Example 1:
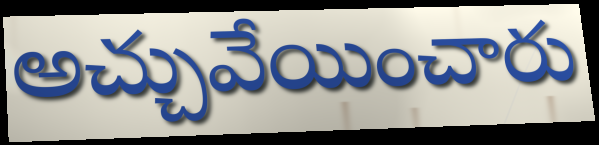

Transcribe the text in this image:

అచ్చువేయించారు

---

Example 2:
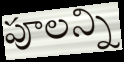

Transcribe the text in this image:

పూలన్ని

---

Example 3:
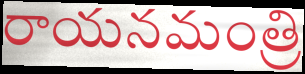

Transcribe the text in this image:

రాయనమంత్రి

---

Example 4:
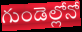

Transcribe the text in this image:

గుండెల్లోనో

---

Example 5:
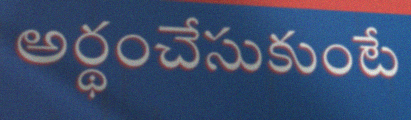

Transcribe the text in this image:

అర్థంచేసుకుంటే